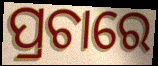
ପ୍ରଚାରେ